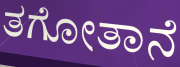
ತಗೋತಾನೆ